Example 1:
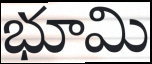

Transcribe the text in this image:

భూమి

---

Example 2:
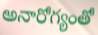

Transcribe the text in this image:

అనారోగ్యంతో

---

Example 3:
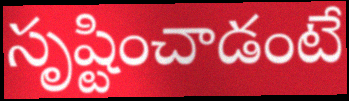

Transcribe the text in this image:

సృష్టించాడంటే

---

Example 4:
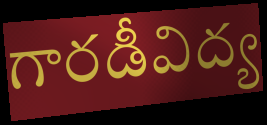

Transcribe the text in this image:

గారడీవిద్య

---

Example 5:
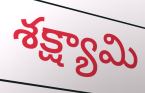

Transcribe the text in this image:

శక్ష్యామి